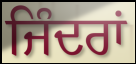
ਜਿੰਦਰਾਂ